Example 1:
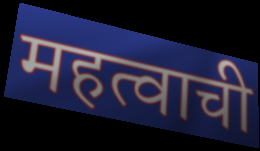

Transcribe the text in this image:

महत्वाची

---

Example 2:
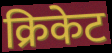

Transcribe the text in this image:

क्रिकेट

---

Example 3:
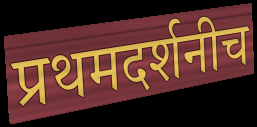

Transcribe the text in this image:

प्रथमदर्शनीच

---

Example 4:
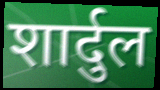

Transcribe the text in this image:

शार्दुल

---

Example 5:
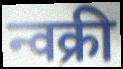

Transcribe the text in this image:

न्वक्री